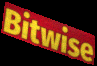
Bitwise